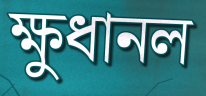
ক্ষুধানল